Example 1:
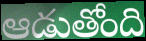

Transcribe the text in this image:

ఆడుతోంది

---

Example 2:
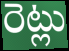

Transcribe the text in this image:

రెట్లు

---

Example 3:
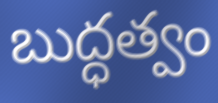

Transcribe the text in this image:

బుద్ధత్వం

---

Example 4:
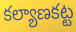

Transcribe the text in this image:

కల్యాణకట్ట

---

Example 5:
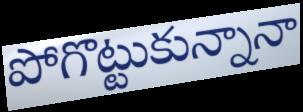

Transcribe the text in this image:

పోగొట్టుకున్నానా